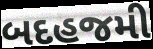
બદહજમી